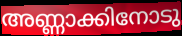
അണ്ണാക്കിനോടു